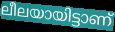
ലീലയായിട്ടാണ്